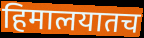
हिमालयातच